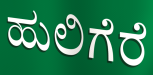
ಹುಲಿಗೆರೆ